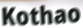
Kothao